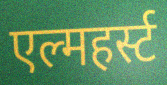
एल्महर्स्ट